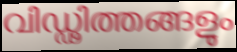
വിഡ്ഢിത്തങ്ങളും